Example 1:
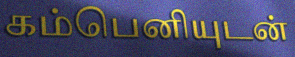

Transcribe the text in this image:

கம்பெனியுடன்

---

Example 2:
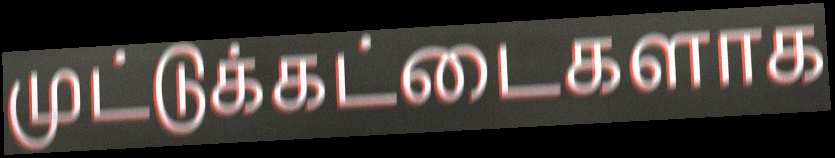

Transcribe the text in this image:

முட்டுக்கட்டைகளாக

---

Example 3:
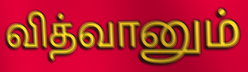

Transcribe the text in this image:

வித்வானும்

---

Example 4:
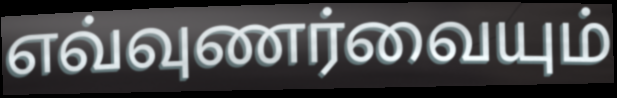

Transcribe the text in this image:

எவ்வுணர்வையும்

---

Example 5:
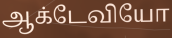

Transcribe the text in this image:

ஆக்டேவியோ